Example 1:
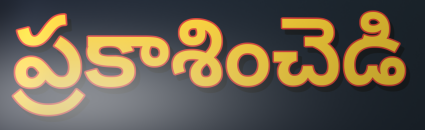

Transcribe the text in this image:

ప్రకాశించెడి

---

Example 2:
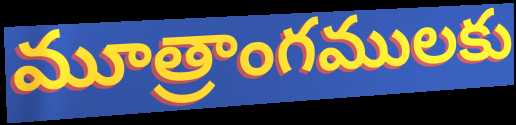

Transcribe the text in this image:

మూత్రాంగములకు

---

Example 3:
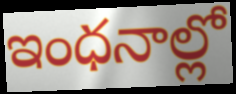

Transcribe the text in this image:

ఇంధనాల్లో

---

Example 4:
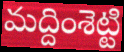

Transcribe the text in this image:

మద్దింశెట్టి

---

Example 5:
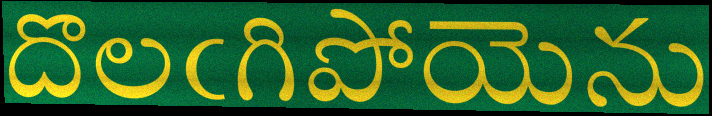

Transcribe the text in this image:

దొలఁగిపోయెను